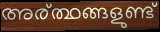
അര്ത്ഥങ്ങളുണ്ട്